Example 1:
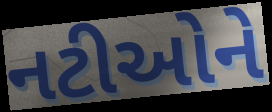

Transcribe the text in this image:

નટીઓને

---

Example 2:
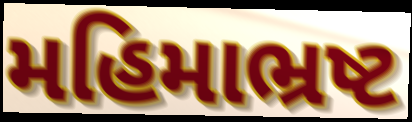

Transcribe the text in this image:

મહિમાભ્રષ્ટ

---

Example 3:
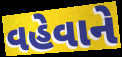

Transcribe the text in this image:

વહેવાને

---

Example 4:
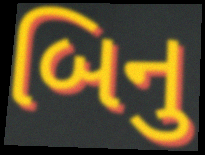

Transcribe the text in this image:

બિનુ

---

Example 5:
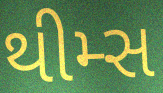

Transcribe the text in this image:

થીમ્સ